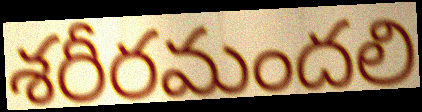
శరీరమందలి